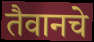
तैवानचे